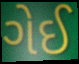
ગેઈ